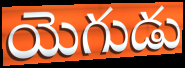
యెగుడు